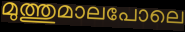
മുത്തുമാലപോലെ